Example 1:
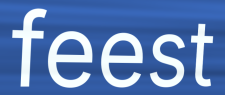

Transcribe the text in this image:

feest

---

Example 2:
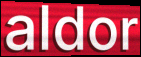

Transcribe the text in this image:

aldor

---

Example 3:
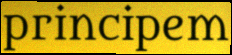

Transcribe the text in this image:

principem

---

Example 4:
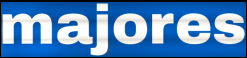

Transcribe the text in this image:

majores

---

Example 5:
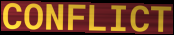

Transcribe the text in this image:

CONFLICT